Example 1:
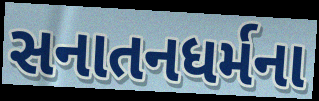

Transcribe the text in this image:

સનાતનધર્મના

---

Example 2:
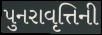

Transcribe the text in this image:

પુનરાવૃત્તિની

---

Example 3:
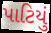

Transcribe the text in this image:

પાટિયું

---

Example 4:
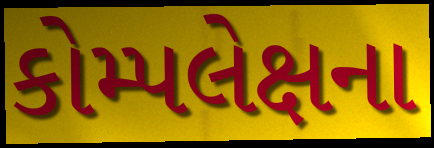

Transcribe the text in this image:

કોમ્પલેક્ષના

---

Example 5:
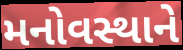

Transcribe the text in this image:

મનોવસ્થાને